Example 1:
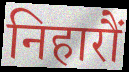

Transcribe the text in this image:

निहारौं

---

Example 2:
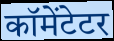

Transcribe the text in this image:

कॉमेंटेटर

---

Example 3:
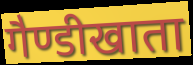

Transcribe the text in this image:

गैण्डीखाता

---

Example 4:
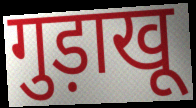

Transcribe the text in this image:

गुड़ाखू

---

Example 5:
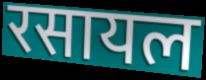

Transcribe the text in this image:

रसायल